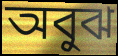
অবুঝ